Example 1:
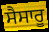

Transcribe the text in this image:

ਸੈਸਾਰੂ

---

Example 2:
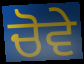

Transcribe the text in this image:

ਚੋਵੇ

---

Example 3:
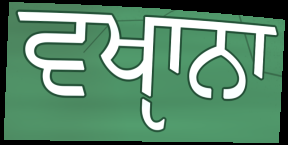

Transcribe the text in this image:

ਵਖੵਾਨਾ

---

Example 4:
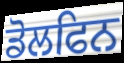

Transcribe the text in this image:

ਡੋਲਫਿਨ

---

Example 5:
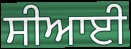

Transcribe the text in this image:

ਸੀਆਈ